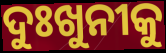
ଦୁଃଖୁନୀକୁ